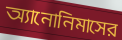
অ্যানোনিমাসের